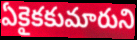
ఏకైకకుమారుని